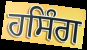
ਹਸਿੰਗ